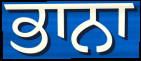
ਭਾਨਾ